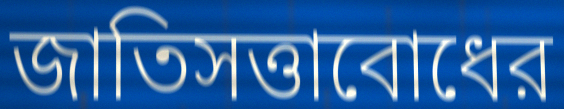
জাতিসত্তাবোধের